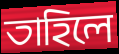
তাহিলে